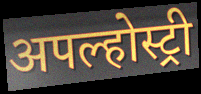
अपल्होस्ट्री